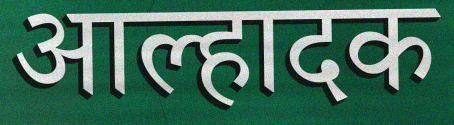
आल्हादक